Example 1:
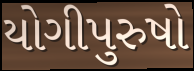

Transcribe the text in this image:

યોગીપુરુષો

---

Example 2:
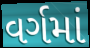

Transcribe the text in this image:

વર્ગમાં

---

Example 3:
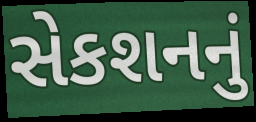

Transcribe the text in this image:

સેકશનનું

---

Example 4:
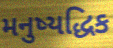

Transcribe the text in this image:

મનુષ્યદ્ધિક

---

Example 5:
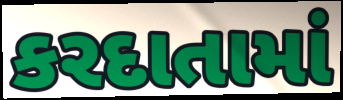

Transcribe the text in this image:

કરદાતામાં